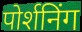
पोर्शनिंग